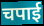
चपाई